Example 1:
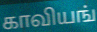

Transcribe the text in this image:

காவியங்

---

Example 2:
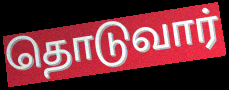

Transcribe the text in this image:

தொடுவார்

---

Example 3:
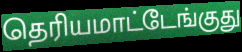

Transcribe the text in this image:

தெரியமாட்டேங்குது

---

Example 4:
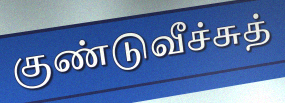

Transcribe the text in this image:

குண்டுவீச்சுத்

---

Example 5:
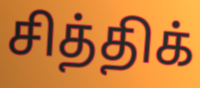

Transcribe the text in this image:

சித்திக்